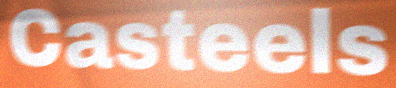
Casteels